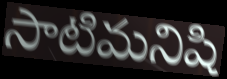
సాటిమనిషి